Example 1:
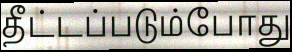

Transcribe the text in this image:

தீட்டப்படும்போது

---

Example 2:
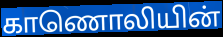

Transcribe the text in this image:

காணொலியின்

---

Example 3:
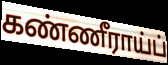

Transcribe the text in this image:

கண்ணீராய்ப்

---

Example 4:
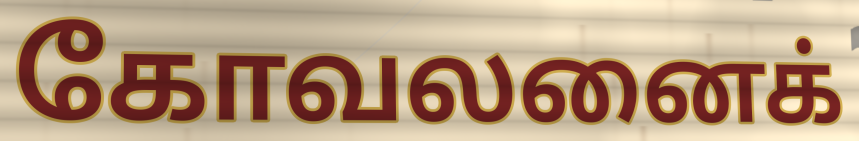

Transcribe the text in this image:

கோவலனைக்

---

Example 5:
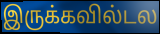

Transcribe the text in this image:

இருக்கவில்டல